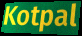
Kotpal